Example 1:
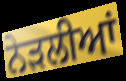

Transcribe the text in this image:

ਨੇੜਲੀਆਂ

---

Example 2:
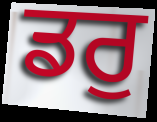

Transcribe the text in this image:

ਡਰੁ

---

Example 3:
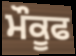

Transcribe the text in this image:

ਮੌਕੂਫ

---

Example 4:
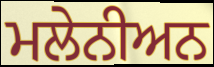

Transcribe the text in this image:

ਮਲੇਨੀਅਨ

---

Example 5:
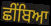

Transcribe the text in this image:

ਛੀਂਬਿਆ